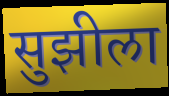
सुझीला